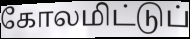
கோலமிட்டுப்